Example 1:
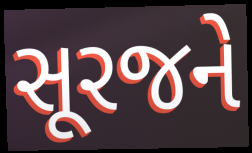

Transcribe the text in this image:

સૂરજને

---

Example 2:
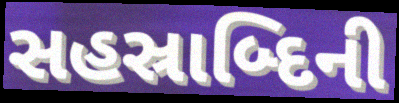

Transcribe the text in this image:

સહસ્રાબ્દિની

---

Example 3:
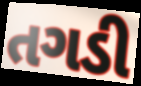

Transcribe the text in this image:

તગડી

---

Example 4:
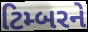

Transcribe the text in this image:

ટિમ્બરને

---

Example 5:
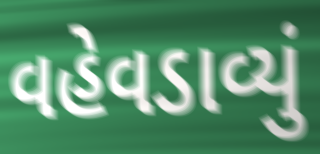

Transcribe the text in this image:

વહેવડાવ્યું